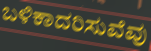
ಬಳಿಕಾದರಿಸುವೆವು